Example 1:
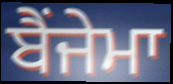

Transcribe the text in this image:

ਬੈਂਜੇਮਾ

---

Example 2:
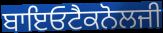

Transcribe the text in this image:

ਬਾਇਓਟੈਕਨੋਲਜੀ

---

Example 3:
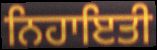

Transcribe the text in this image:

ਨਿਹਾਇਤੀ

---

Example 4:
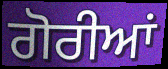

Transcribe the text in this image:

ਗੋਰੀਆਂ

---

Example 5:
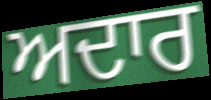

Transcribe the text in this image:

ਅਦਾਰ